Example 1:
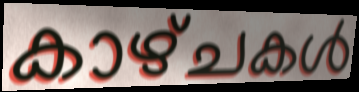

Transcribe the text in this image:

കാഴ്‌ചകൾ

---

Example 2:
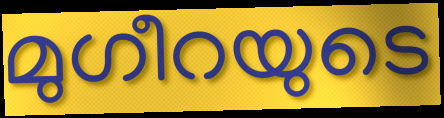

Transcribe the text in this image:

മുഗീറയുടെ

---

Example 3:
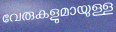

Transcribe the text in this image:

വേരുകളുമായുള്ള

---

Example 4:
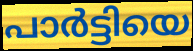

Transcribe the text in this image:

പാർട്ടിയെ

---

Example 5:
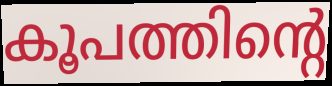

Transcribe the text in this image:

കൂപത്തിന്റെ